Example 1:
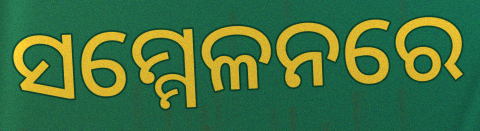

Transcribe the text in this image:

ସମ୍ମେଳନରେ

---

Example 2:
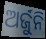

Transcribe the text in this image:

ଅର୍ଜୁନି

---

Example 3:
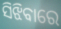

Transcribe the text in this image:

ସିଝିବାରେ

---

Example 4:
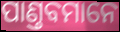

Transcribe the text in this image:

ପାଣ୍ତବମାନେ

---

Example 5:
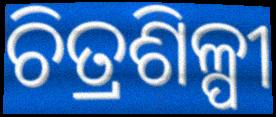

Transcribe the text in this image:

ଚିତ୍ରଶିଳ୍ପୀ